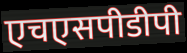
एचएसपीडीपी